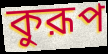
কুরূপ